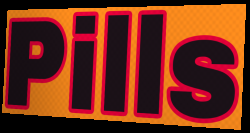
Pills